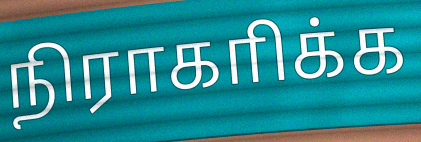
நிராகரிக்க